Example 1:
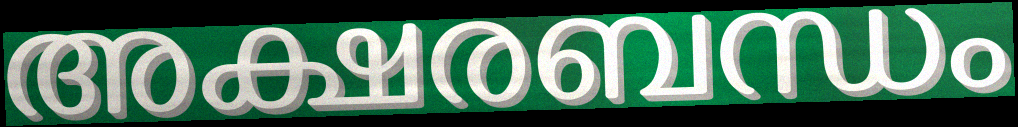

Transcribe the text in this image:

അക്ഷരബന്ധം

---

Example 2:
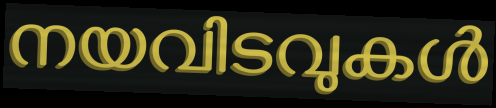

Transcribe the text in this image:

നയവിടവുകൾ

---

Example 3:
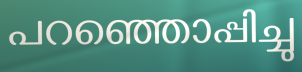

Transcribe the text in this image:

പറഞ്ഞൊപ്പിച്ചു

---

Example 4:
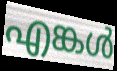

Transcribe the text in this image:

എങ്കൾ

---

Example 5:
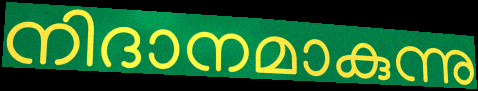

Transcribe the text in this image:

നിദാനമാകുന്നു